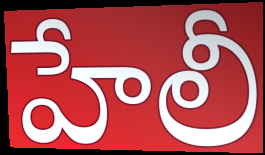
హేలీ